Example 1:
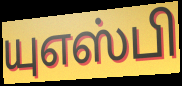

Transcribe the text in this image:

யுஎஸ்பி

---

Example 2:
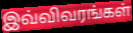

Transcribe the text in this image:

இவ்விவரங்கள்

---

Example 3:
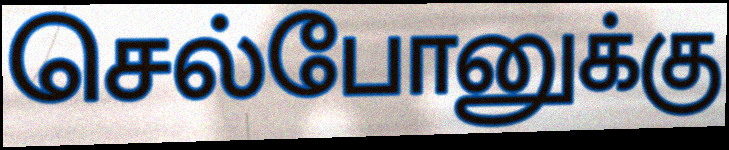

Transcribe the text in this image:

செல்போனுக்கு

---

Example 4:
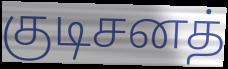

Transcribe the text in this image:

குடிசனத்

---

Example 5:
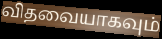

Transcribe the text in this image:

விதவையாகவும்